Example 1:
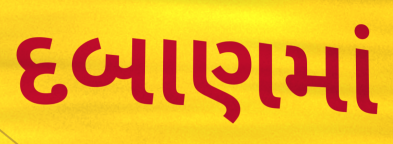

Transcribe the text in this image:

દબાણમાં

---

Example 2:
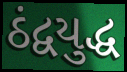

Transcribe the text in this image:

ઠંદ્વયુદ્ધ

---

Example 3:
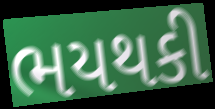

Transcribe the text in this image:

ભયથકી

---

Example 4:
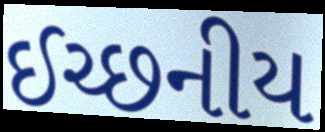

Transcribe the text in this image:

ઈચ્છનીય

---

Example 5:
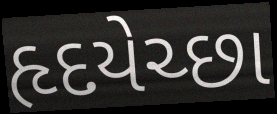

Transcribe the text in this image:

હૃદયેચ્છા